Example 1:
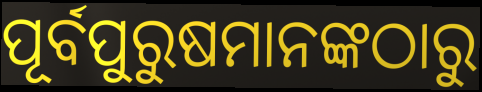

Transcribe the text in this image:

ପୂର୍ବପୁରୁଷମାନଙ୍କଠାରୁ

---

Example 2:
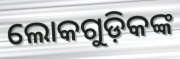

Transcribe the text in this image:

ଲୋକଗୁଡ଼ିକଙ୍କ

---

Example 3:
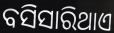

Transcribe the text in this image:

ବସିସାରିଥାଏ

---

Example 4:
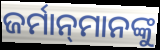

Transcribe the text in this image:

ଜର୍ମାନ୍‌ମାନଙ୍କୁ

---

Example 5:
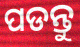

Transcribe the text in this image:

ପଡନ୍ତୁ